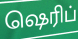
ஷெரிப்